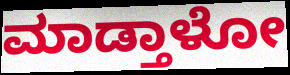
ಮಾಡ್ತಾಳೋ